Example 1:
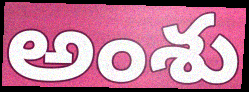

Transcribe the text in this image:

అంశు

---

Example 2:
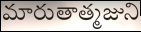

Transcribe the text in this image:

మారుతాత్మజుని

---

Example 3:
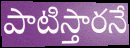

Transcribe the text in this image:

పాటిస్తారనే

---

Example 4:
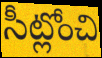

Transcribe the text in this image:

సీట్లోంచి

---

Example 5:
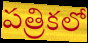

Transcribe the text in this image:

పత్రికలో